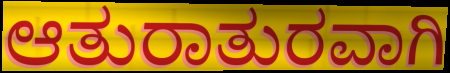
ಆತುರಾತುರವಾಗಿ